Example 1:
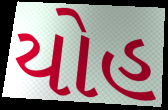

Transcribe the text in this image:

યોહ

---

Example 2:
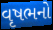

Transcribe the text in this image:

વૃષભનો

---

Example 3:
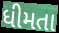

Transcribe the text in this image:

ધીમતા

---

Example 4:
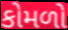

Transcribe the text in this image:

કોમળો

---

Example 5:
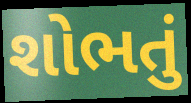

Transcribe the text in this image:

શોભતું